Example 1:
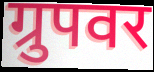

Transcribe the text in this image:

ग्रुपवर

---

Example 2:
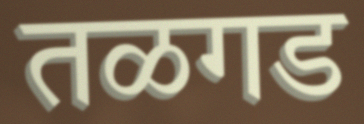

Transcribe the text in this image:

तळगड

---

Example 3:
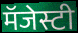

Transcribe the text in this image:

मॅजेस्टी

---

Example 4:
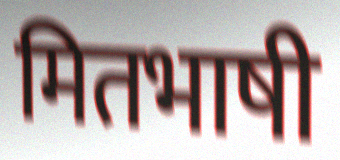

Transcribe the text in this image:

मितभाषी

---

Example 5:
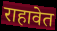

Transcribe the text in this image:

राहावेत